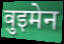
वुइमेन